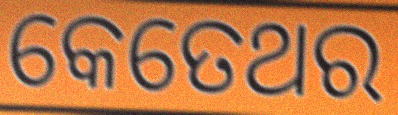
କେତେଥର